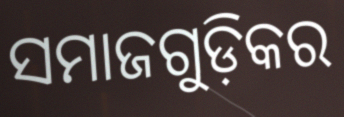
ସମାଜଗୁଡ଼ିକର